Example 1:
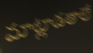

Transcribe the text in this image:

మాట్లాడతాలే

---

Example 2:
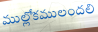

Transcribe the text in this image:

ముల్లోకములందలి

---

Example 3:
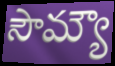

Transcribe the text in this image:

సౌమ్యౌ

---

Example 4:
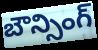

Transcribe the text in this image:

బౌన్సింగ్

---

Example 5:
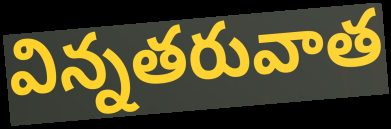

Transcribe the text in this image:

విన్నతరువాత